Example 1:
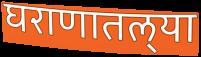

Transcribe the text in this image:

घराणातल्या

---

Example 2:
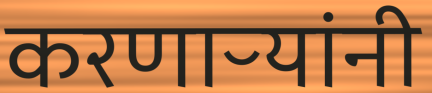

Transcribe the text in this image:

करणाऱ्यांनी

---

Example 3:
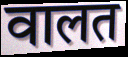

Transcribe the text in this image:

वालत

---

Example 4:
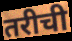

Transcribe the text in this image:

तरीची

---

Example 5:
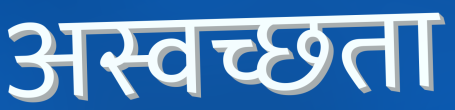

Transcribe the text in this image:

अस्वच्छता